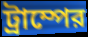
ট্রাম্পের